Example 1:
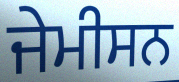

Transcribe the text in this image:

ਜੇਮੀਸਨ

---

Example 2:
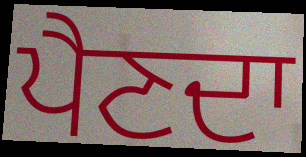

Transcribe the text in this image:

ਪੈਣਦਾ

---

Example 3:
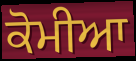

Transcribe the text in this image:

ਕੋਮੀਆ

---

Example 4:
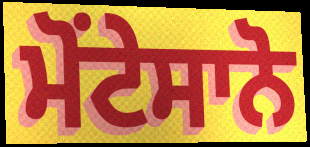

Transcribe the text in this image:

ਮੋਂਟੇਸਾਨੋ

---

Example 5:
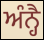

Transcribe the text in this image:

ਅੰਨ੍ਹੈ